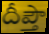
దీప్తౌ